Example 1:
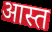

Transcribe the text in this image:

आस्त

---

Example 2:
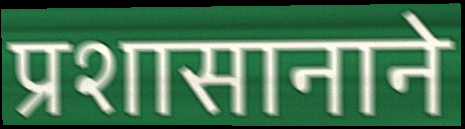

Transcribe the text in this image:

प्रशासानाने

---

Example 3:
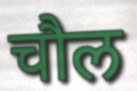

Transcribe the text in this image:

चौल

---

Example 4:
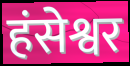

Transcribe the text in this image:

हंसेश्वर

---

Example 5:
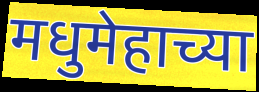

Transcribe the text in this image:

मधुमेहाच्या